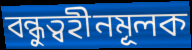
বন্ধুত্বহীনমূলক